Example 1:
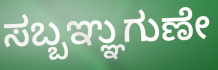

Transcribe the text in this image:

ಸಬ್ಬಞ್ಞುಗುಣೇ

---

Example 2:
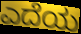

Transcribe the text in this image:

ಎದೆಯ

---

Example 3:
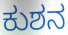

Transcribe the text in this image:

ಕುಶನ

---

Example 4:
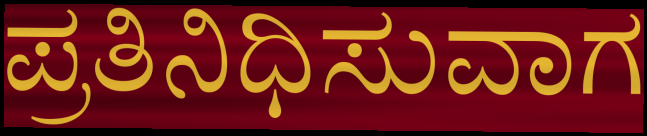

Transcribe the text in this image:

ಪ್ರತಿನಿಧಿಸುವಾಗ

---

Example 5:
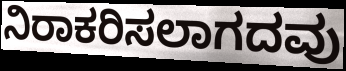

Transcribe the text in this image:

ನಿರಾಕರಿಸಲಾಗದವು